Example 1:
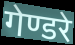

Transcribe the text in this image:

गेण्डरे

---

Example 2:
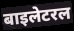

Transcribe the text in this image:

बाइलेटरल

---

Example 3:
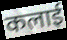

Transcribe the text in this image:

कलाई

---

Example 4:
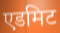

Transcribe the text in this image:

एडमिट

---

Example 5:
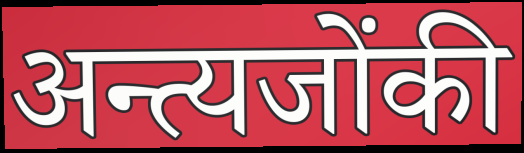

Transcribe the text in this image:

अन्त्यजोंकी